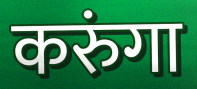
करुंगा